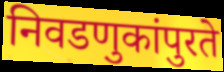
निवडणुकांपुरते